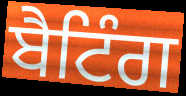
ਬੈਟਿੰਗ